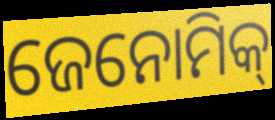
ଜେନୋମିକ୍